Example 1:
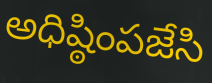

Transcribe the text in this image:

అధిష్ఠింపజేసి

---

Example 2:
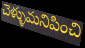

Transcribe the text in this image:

చెళ్ళుమనిపించి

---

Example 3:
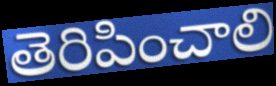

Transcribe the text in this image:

తెరిపించాలి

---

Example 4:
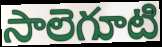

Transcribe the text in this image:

సాలెగూటి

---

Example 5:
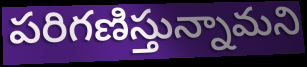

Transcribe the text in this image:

పరిగణిస్తున్నామని